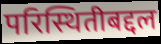
परिस्थितीबद्दल